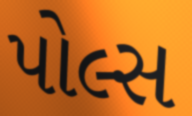
પોલ્સ